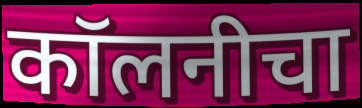
कॉलनीचा